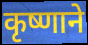
कृष्णाने